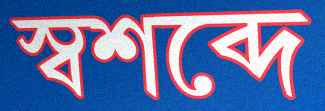
স্বশব্দে